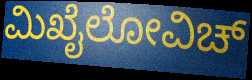
ಮಿಖೈಲೋವಿಚ್